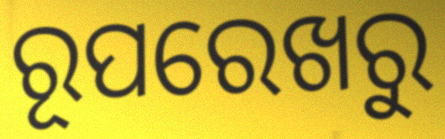
ରୂପରେଖରୁ